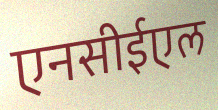
एनसीईएल